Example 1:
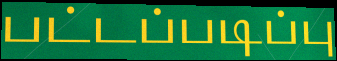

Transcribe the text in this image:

பட்டப்படிப்பு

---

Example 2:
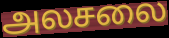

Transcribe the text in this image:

அலசலை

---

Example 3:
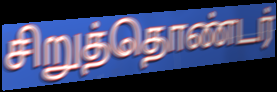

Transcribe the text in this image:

சிறுத்தொண்டர்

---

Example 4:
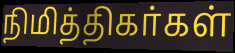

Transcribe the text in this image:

நிமித்திகர்கள்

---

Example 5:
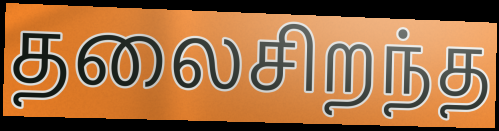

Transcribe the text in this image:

தலைசிறந்த